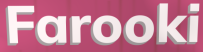
Farooki